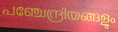
പഞ്ചേന്ദ്രിയങ്ങളും